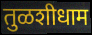
तुळशीधाम